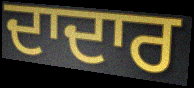
ਦਾਦਾਰ